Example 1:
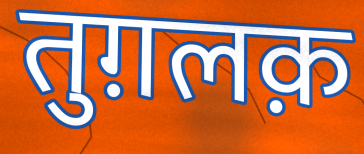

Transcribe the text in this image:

तुग़लक़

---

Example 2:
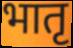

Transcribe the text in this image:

भातृ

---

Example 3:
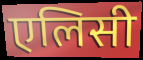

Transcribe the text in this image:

एलिसी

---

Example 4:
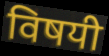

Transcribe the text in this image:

विषयी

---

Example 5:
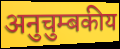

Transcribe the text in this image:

अनुचुम्बकीय